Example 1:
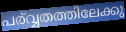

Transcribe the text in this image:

പര്വ്വതത്തിലേക്കു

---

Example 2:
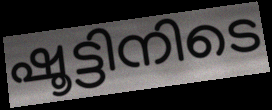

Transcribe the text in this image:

ഷൂട്ടിനിടെ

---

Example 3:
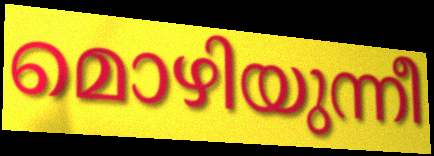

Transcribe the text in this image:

മൊഴിയുന്നീ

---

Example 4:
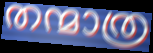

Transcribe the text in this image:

തന്മാത്ര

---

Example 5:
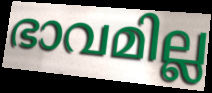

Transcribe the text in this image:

ഭാവമില്ല